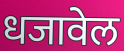
धजावेल